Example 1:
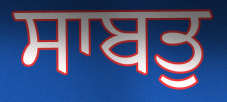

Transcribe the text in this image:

ਸਾਬਤੁ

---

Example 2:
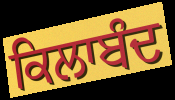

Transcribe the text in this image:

ਕਿਲਾਬੰਦ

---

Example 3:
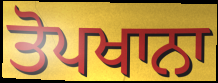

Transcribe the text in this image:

ਤੋਪਖਾਨਾ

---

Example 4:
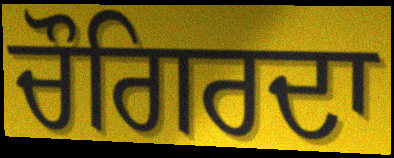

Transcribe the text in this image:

ਚੌਗਿਰਦਾ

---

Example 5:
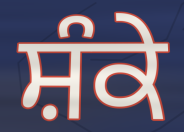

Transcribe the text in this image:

ਸ਼ੰਕੇ